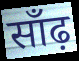
साँढ़